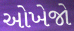
ઓખેજો